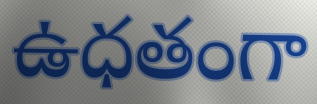
ఉధతంగా